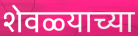
शेवळ्याच्या